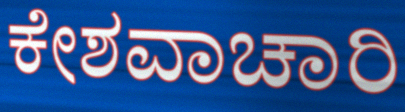
ಕೇಶವಾಚಾರಿ